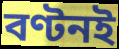
বণ্টনই